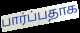
பார்ப்பதாக